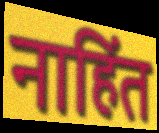
नाहिंत